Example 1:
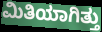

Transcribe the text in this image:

ಮಿತಿಯಾಗಿತ್ತು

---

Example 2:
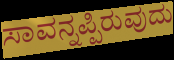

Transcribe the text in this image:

ಸಾವನ್ನಪ್ಪಿರುವುದು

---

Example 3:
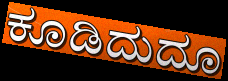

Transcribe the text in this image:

ಕೂಡಿದುದೂ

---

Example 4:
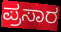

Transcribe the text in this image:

ಪ್ರಸಾರ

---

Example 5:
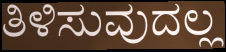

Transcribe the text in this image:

ತಿಳಿಸುವುದಲ್ಲ